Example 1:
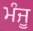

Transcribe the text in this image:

ਮੰਜੂ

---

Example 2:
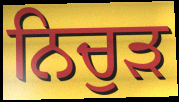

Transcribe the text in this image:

ਨਿਚੁੜ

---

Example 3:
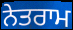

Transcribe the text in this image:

ਨੇਤਰਾਮ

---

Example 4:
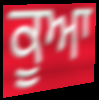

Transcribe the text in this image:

ਕੂਆ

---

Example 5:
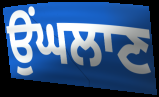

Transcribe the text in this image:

ਉਂਘਲਾਣ